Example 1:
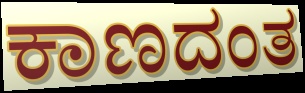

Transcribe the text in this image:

ಕಾಣದಂತ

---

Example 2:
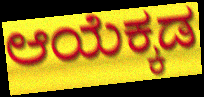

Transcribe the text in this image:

ಆಯೆಕ್ಕಡ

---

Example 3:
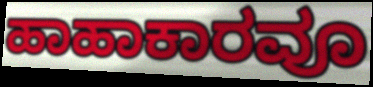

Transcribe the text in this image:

ಹಾಹಾಕಾರವೂ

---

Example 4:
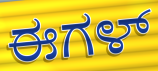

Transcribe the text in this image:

ಈಗಳ್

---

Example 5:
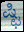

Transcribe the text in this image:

ಷ್ಟಿ